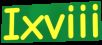
Ixviii